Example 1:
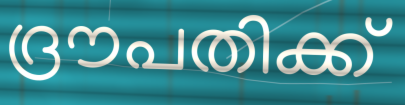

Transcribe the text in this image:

ദ്രൗപതിക്ക്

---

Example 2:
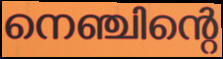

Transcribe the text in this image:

നെഞ്ചിന്റെ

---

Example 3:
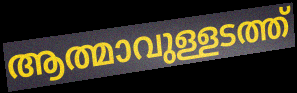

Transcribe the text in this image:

ആത്മാവുള്ളടത്ത്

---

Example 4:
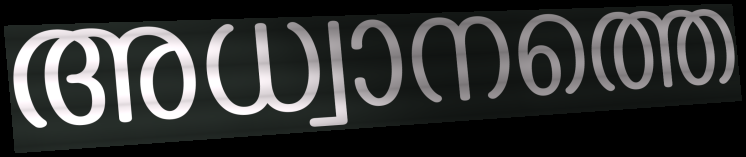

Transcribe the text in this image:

അധ്വാനത്തെ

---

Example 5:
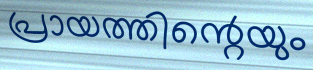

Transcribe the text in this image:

പ്രായത്തിന്റെയും